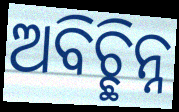
ଅବିଚ୍ଛିନ୍ନ